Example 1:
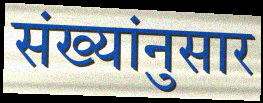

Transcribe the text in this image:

संख्यांनुसार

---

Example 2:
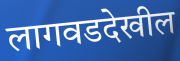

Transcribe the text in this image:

लागवडदेखील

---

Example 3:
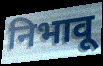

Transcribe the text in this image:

निभावू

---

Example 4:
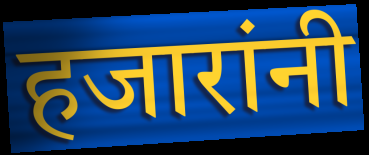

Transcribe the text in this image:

हजारांनी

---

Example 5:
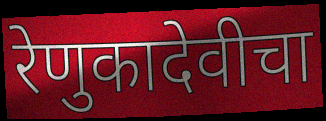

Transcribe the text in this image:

रेणुकादेवीचा